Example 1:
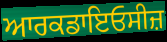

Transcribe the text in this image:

ਆਰਕਡਾਇਓਸੀਜ਼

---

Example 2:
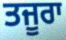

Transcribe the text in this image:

ਤਜੂਰਾ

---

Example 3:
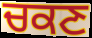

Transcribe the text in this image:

ਚਕਣ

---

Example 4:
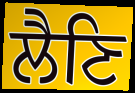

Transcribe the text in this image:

ਲੈਣਿ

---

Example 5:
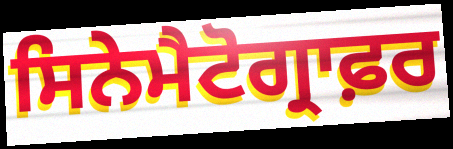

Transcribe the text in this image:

ਸਿਨੇਮੈਟੋਗ੍ਰਾਫ਼ਰ